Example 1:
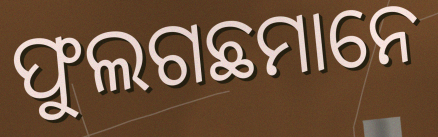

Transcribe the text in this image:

ଫୁଲଗଛମାନେ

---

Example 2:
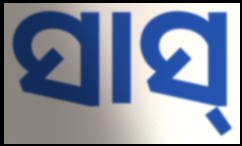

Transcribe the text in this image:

ସାସ୍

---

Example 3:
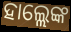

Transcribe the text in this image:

ହାଲ୍ଲେଙ୍କ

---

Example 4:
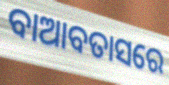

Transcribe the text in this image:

ବାଆବତାସରେ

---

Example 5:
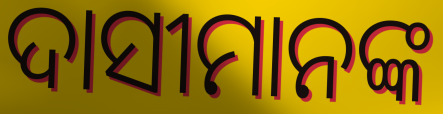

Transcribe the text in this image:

ଦାସୀମାନଙ୍କ